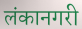
लंकानगरी